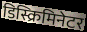
डिस्क्रिमिनेटर